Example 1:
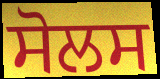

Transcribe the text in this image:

ਸੋਲਸ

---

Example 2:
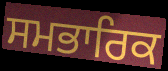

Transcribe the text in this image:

ਸਮਭਾਰਿਕ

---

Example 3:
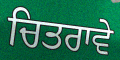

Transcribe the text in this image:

ਚਿਤਰਾਵੇ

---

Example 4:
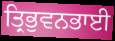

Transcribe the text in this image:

ਤ੍ਰਿਭੁਵਨਭਾਈ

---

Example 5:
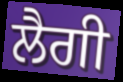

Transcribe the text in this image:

ਲੈਗੀ